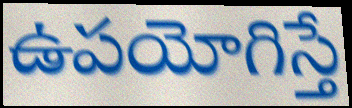
ఉపయోగిస్తే